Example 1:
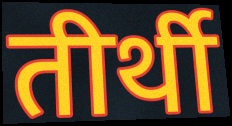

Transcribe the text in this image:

तीर्थी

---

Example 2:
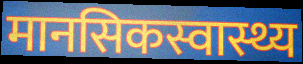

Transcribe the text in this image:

मानसिकस्वास्थ्य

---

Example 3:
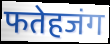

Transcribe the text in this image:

फतेहजंग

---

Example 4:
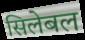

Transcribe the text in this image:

सिलेबल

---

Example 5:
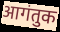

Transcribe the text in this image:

आगंतुक